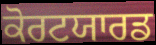
ਕੋਰਟਯਾਰਡ